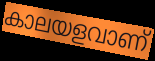
കാലയളവാണ്